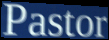
Pastor